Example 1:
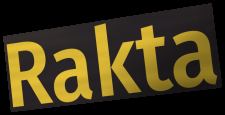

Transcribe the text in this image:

Rakta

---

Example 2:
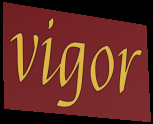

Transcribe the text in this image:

vigor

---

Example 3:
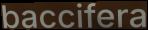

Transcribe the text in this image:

baccifera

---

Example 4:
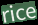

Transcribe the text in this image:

rice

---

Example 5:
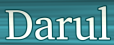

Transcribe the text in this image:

Darul